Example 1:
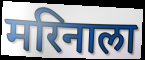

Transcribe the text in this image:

मरिनाला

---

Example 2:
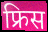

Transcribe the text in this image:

फ्रिस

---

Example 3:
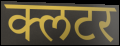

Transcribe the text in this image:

क्लटर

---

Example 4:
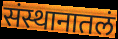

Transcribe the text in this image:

संस्थानातलं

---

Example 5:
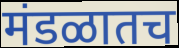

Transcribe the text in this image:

मंडळातच